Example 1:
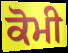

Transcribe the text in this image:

ਕੋਮੀ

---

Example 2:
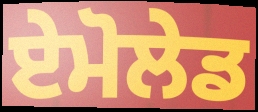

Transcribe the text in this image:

ਏਮੋਲੇਡ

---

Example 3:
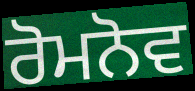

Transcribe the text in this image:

ਰੋਮਨੋਵ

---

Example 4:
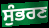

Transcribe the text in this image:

ਸੁੰਭਰਣ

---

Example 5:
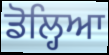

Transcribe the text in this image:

ਡੋਲ੍ਹਿਆ